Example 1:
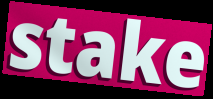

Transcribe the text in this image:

stake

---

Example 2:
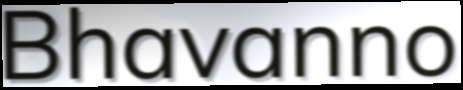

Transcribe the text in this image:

Bhavanno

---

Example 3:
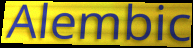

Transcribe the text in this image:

Alembic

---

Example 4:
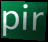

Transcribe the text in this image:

pir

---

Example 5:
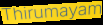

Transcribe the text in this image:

Thirumayam